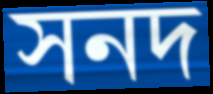
সনদ